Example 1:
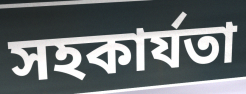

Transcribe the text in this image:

সহকাৰ্যতা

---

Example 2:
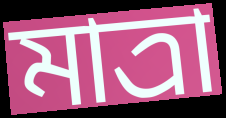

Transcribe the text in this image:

মাত্ৰা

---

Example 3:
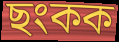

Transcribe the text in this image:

ছংকক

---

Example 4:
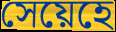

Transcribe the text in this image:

সেয়েহে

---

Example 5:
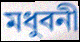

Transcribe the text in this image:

মধুবনী